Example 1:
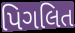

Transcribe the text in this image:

પિગલિત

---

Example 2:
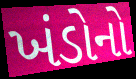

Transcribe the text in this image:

ખંડોનો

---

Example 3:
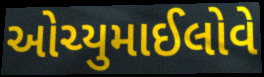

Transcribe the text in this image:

ઓચ્યુમાઈલોવે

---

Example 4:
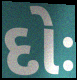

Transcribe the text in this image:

દોઃ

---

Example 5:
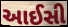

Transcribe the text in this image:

આઈસી